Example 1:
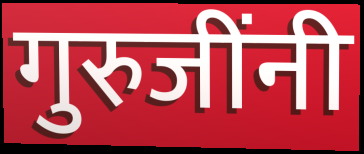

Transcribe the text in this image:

गुरुजींनी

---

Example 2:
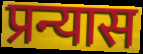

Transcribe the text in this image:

प्रन्यास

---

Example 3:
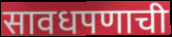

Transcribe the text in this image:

सावधपणाची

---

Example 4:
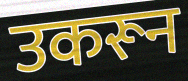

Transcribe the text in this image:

उकरून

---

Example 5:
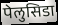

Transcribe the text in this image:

पेलुसिडा